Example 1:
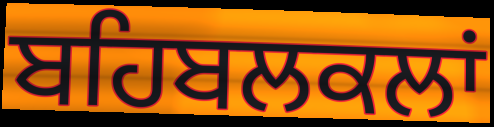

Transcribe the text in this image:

ਬਹਿਬਲਕਲਾਂ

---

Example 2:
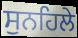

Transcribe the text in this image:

ਸੁਨਹਿਲੇ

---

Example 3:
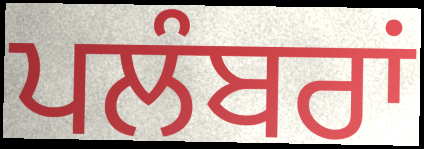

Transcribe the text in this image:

ਪਲੰਬਰਾਂ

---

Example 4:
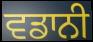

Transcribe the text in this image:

ਵਡਾਨੀ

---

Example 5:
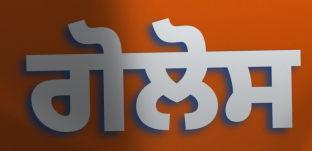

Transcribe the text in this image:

ਗੋਲੋਸ